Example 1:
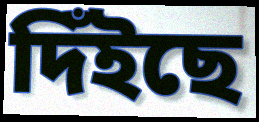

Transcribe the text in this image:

দিঁইছে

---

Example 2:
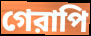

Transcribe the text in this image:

গেরাপি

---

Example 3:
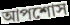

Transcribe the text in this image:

আপশোস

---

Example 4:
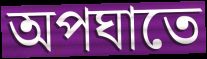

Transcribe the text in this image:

অপঘাতে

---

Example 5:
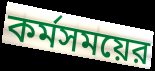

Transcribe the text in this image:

কর্মসময়ের